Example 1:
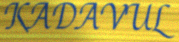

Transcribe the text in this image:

KADAVUL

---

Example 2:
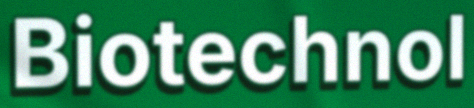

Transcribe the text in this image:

Biotechnol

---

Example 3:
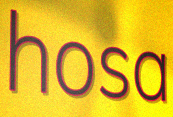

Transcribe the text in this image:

hosa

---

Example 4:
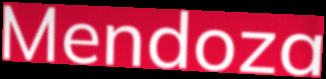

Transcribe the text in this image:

Mendoza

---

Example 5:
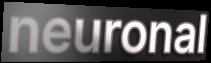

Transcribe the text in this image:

neuronal